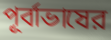
পূর্বাভাষের